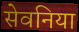
सेवनिया